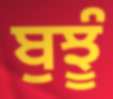
ਬੁਝੂੰ